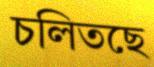
চলিতছে